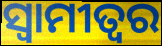
ସ୍ୱାମୀତ୍ୱର